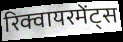
रिक्वायरमेंट्स